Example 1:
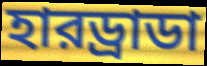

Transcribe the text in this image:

হারড্রাডা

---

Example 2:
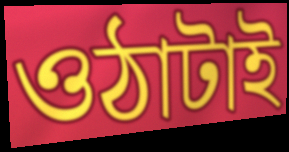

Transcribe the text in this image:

ওঠাটাই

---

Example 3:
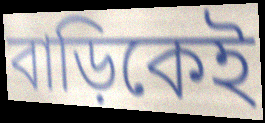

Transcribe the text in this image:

বাড়িকেই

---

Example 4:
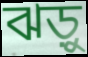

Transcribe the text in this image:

ঝড়ু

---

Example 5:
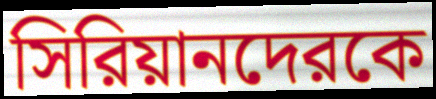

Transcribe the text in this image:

সিরিয়ানদেরকে